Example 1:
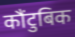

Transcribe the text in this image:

कौंटुबिक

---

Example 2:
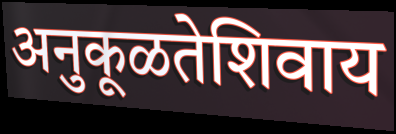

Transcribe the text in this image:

अनुकूळतेशिवाय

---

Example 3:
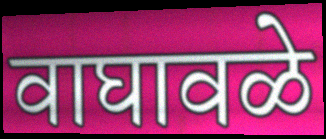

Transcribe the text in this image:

वाघावळे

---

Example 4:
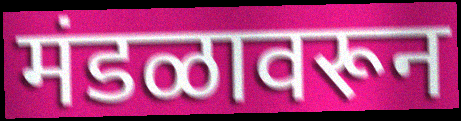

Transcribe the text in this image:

मंडळावरून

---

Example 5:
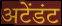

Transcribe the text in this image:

अटेंडंट